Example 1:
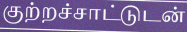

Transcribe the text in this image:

குற்றச்சாட்டுடன்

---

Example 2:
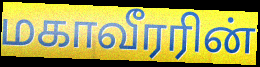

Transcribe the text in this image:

மகாவீரரின்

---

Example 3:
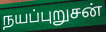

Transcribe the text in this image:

நயப்புறுசன்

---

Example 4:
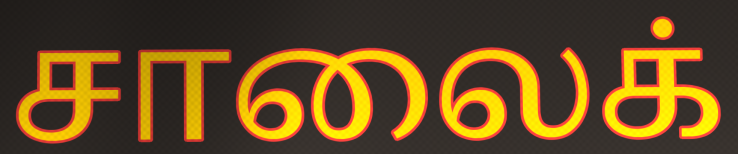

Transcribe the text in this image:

சாலைக்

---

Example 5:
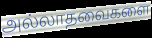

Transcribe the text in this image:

அல்லாதவைகளை